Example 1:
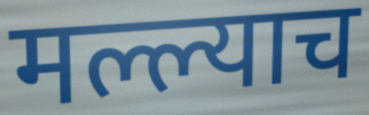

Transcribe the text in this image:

मल्ल्याच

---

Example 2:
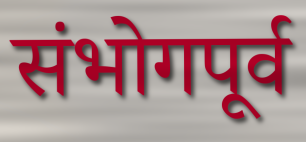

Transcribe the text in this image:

संभोगपूर्व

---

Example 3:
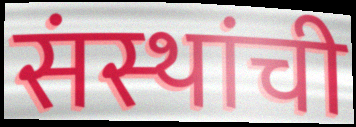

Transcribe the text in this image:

संस्थांची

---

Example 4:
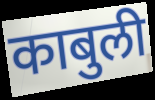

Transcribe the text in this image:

काबुली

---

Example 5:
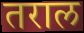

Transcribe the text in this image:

तराल